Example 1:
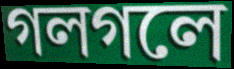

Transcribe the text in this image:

গলগলে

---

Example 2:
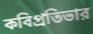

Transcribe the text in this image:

কবিপ্রতিভার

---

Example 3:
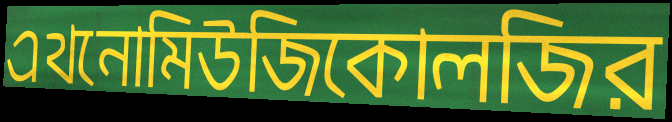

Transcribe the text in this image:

এথনোমিউজিকোলজির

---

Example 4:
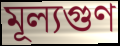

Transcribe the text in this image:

মূল্যগুণ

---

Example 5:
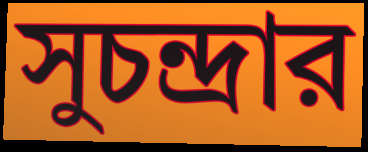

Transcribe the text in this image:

সুচন্দ্রার